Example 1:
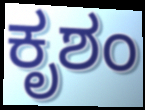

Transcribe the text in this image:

ಕೃಶಂ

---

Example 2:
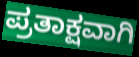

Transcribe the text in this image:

ಪ್ರತಾಕ್ಷವಾಗಿ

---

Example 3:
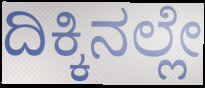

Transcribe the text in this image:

ದಿಕ್ಕಿನಲ್ಲೇ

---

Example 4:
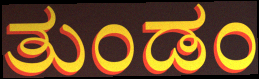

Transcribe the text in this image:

ತುಂಡಂ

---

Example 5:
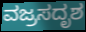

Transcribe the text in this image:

ವಜ್ರಸದೃಶ